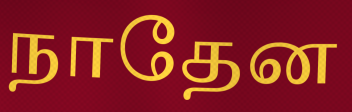
நாதேன